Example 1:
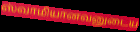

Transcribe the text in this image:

ஸ்வாமியானவனுடைய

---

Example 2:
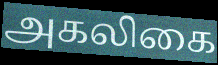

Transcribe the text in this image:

அகலிகை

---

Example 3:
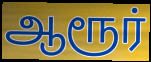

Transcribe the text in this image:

ஆரூர்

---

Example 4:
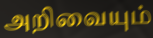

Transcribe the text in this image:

அறிவையும்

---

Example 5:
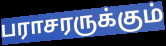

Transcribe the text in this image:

பராசரருக்கும்